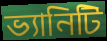
ভ্যানিটি